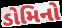
ડોમિનો